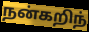
நன்கறிந்